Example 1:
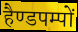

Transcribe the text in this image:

हैण्डपम्पों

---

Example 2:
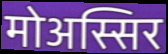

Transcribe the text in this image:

मोअस्सिर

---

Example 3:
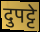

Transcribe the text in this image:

दुपट्टे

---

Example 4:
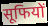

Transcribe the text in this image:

सूफियों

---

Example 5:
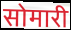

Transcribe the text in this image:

सोमारी